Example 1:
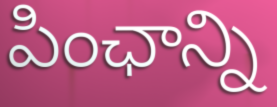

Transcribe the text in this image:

పింఛాన్ని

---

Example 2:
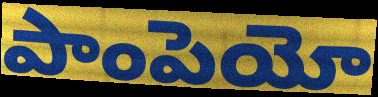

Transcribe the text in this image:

పాంపెయో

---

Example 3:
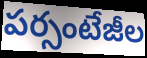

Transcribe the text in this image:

పర్సంటేజీల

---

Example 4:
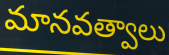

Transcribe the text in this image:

మానవత్వాలు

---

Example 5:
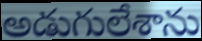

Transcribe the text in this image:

అడుగులేశాను